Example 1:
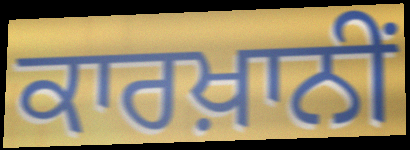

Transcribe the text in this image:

ਕਾਰਖ਼ਾਨੀਂ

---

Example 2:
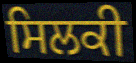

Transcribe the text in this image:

ਸਿਲਕੀ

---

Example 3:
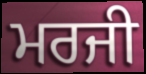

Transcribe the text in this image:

ਮਰਜੀ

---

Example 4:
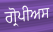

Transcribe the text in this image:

ਗ੍ਰੋਪੀਅਸ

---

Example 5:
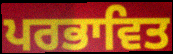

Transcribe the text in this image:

ਪਰਭਾਵਿਤ